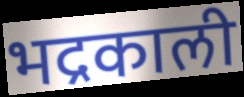
भद्रकाली